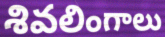
శివలింగాలు